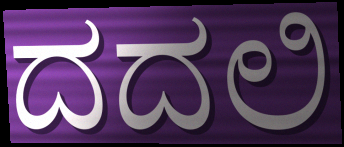
ದದಲಿ